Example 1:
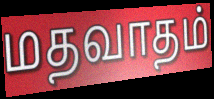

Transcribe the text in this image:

மதவாதம்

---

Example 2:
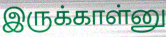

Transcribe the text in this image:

இருக்காள்னு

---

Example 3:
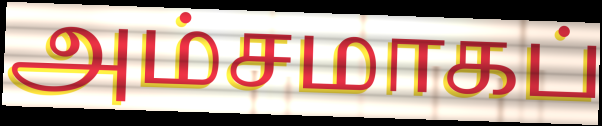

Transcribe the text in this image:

அம்சமாகப்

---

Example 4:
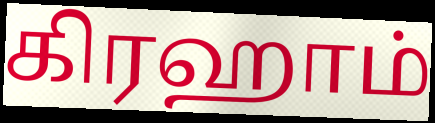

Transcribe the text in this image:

கிரஹாம்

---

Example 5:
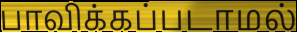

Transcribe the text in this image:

பாவிக்கப்படாமல்